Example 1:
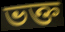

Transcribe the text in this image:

ভক্ত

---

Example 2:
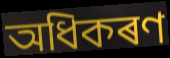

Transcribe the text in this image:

অধিকৰণ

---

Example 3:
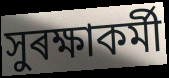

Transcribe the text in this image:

সুৰক্ষাকৰ্মী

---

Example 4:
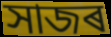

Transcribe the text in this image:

সাজৰ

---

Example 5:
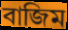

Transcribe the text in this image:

বাজিম